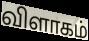
விளாகம்